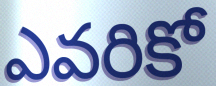
ఎవరికో